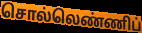
சொல்லெண்ணிப்